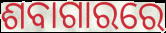
ଶବାଗାରରେ